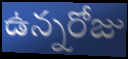
ఉన్నరోజు